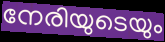
നേരിയുടെയും